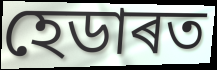
হেডাৰত